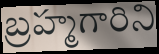
బ్రహ్మగారిని